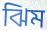
ঝিম